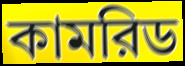
কামরিড